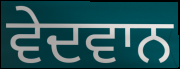
ਵੇਦਵਾਨ